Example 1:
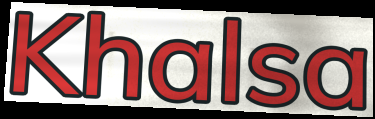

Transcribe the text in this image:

Khalsa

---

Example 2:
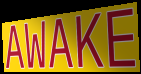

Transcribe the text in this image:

AWAKE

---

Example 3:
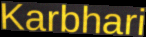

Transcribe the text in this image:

Karbhari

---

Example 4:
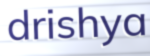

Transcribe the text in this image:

drishya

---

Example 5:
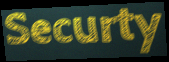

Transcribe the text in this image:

Securty